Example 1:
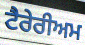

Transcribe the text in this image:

ਟੈਰੇਰੀਅਮ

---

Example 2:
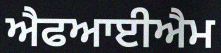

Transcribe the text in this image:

ਐਫਆਈਐਮ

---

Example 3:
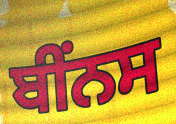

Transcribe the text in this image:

ਬੀਂਨਸ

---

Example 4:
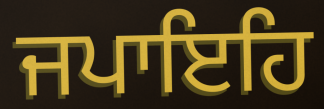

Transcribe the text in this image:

ਜਪਾਇਹਿ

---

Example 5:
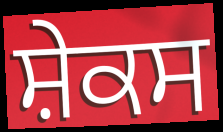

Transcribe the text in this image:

ਸ਼ੇਕਸ